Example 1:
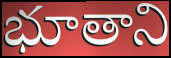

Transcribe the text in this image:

భూతాని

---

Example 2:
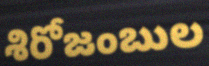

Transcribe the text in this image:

శిరోజంబుల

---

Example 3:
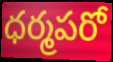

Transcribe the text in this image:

ధర్మపరో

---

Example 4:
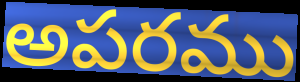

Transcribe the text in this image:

అపరము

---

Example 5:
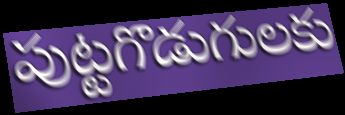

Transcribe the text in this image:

పుట్టగొడుగులకు